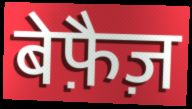
बेफ़ैज़